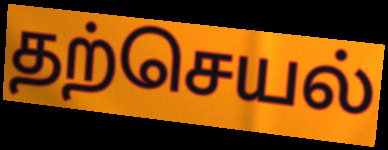
தற்செயல்